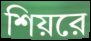
শিয়রে